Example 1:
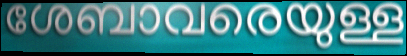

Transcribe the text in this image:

ശേബാവരെയുള്ള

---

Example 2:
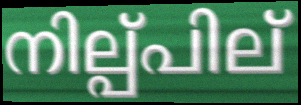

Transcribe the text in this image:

നില്പ്പില്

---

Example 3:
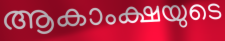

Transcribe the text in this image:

ആകാംക്ഷയുടെ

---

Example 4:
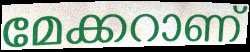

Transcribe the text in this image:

മേക്കറാണ്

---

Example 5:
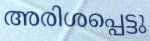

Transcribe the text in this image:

അരിശപ്പെട്ടു